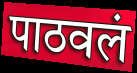
पाठवलं